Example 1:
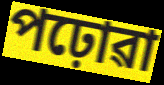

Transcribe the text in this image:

পঢ়োৱা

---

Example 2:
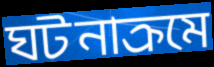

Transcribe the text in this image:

ঘটনাক্ৰমে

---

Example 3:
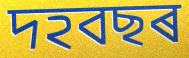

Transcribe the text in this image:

দহবছৰ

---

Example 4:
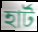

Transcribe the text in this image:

হাৰ্ট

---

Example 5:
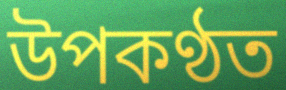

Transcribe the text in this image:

উপকণ্ঠত